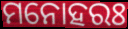
ମନୋହରଃ